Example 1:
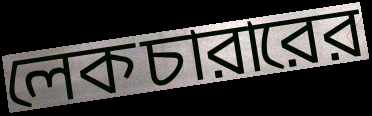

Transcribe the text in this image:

লেকচারারের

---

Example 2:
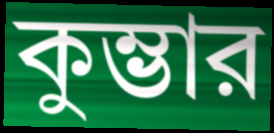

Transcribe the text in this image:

কুম্ভার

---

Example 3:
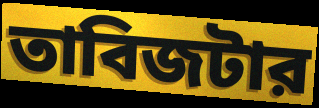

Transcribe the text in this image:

তাবিজটার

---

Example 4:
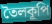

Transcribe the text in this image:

তৈলকূপি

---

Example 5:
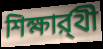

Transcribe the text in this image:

শিক্ষার্র্থী